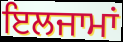
ਇਲਜਾਮਾਂ